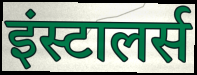
इंस्टालर्स